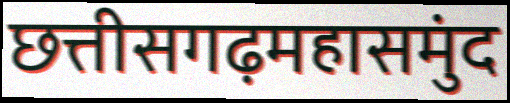
छत्तीसगढ़महासमुंद